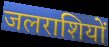
जलराशियों